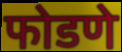
फोडणे